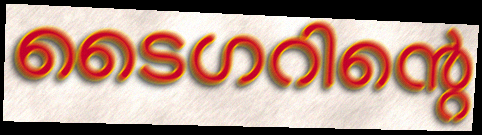
ടൈഗറിന്റെ